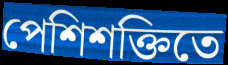
পেশিশক্তিতে